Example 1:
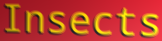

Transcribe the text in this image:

Insects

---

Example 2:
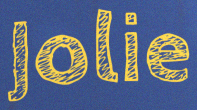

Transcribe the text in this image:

Jolie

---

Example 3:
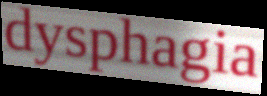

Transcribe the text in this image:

dysphagia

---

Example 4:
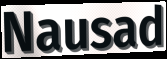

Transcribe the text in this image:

Nausad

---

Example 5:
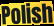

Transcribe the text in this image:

Polish